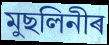
মুছলিনীৰ